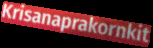
Krisanaprakornkit